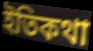
ইতিকথা